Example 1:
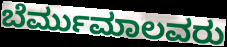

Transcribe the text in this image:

ಬೆರ್ಮುಮಾಲವರು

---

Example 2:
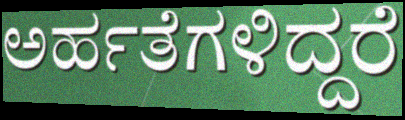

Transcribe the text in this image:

ಅರ್ಹತೆಗಳಿದ್ದರೆ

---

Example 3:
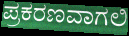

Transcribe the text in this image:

ಪ್ರಕರಣವಾಗಲಿ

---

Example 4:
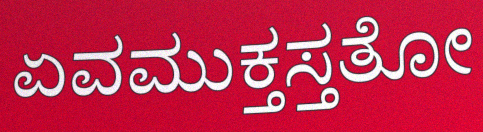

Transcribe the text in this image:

ಏವಮುಕ್ತಸ್ತತೋ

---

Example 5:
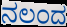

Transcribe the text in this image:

ನಲಂದ